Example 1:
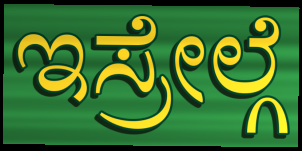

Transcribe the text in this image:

ಇಸ್ರೇಲ್ಗೆ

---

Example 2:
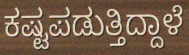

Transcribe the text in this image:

ಕಷ್ಟಪಡುತ್ತಿದ್ದಾಳೆ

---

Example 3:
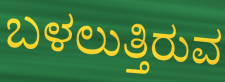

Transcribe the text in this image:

ಬಳಲುತ್ತಿರುವ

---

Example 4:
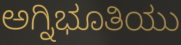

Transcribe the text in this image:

ಅಗ್ನಿಭೂತಿಯು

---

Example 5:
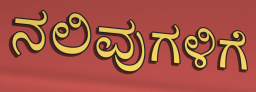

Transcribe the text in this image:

ನಲಿವುಗಳಿಗೆ